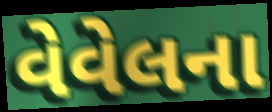
વેવેલના